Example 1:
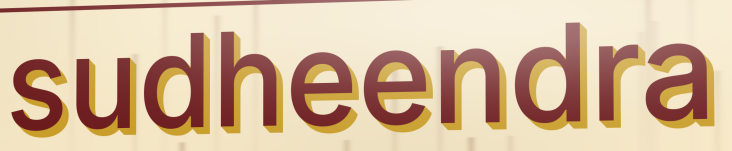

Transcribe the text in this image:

sudheendra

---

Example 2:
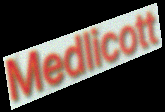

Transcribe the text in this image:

Medlicott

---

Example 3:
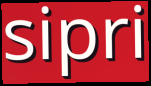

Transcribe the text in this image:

sipri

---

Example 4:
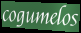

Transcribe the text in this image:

cogumelos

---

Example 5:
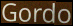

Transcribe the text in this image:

Gordo